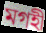
মগহী